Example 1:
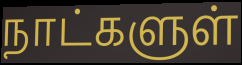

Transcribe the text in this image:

நாட்களுள்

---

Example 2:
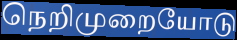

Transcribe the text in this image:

நெறிமுறையோடு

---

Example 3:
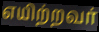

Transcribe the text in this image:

எயிற்றவர்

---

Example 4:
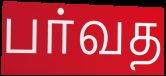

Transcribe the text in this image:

பர்வத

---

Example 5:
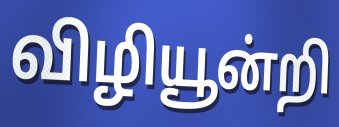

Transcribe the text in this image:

விழியூன்றி